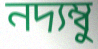
নদ্যম্বু